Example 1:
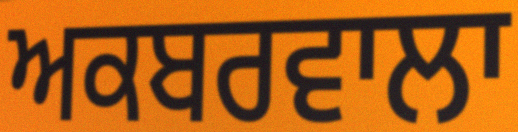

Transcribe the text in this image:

ਅਕਬਰਵਾਲਾ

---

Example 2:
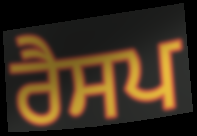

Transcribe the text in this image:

ਰੈਸਪ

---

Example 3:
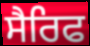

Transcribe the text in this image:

ਸੈਰਿਫ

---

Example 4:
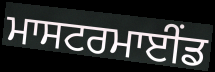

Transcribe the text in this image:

ਮਾਸਟਰਮਾਈਂਡ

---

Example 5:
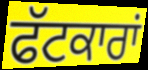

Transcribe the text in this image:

ਫੱਟਕਾਰਾਂ